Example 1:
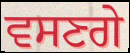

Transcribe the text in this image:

ਵਸਣਗੇ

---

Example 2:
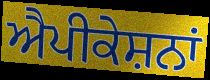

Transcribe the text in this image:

ਐਪੀਕੇਸ਼ਨਾਂ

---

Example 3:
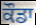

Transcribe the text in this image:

ਕੌਡਾ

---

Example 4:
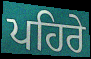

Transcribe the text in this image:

ਪਹਿਰੇ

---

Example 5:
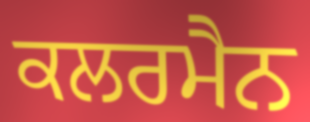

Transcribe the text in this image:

ਕਲਰਮੈਨ